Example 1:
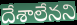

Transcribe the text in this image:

దేశాలేనని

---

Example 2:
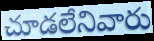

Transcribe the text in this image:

చూడలేనివారు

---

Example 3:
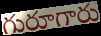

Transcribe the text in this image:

గురూగారు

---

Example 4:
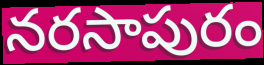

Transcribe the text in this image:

నరసాపురం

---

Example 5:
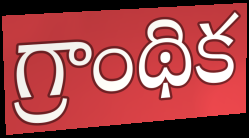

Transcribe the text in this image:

గ్రాంథిక